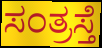
ಸಂತ್ರಸ್ತೆ